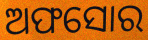
ଅଫସୋର